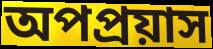
অপপ্রয়াস